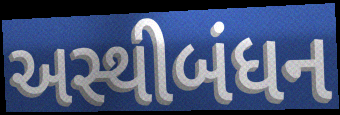
અસ્થીબંધન